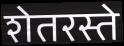
शेतरस्ते